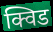
क्विड